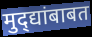
मुद्द्यांबाबत